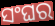
ସଂଘର